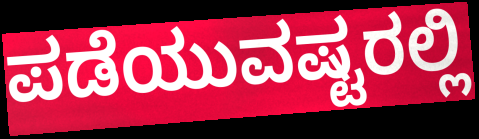
ಪಡೆಯುವಷ್ಟರಲ್ಲಿ